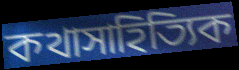
কথাসাহিত্যিক